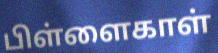
பிள்ளைகாள்